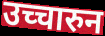
उच्चारुन